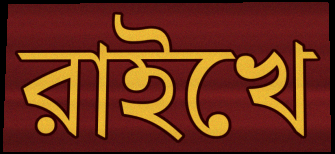
রাইখে